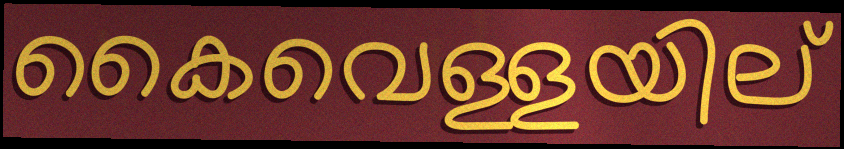
കൈവെള്ളയില്